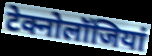
टेक्नोलॉजियां